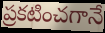
ప్రకటించగానే